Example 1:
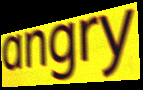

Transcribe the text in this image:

angry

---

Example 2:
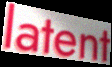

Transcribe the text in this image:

latent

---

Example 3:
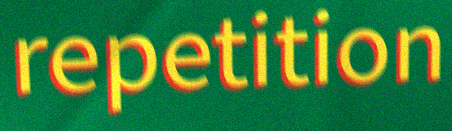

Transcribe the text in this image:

repetition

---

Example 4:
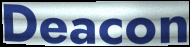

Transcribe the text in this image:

Deacon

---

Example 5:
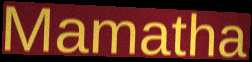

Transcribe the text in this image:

Mamatha